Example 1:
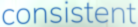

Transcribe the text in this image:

consistent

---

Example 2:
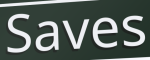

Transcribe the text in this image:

Saves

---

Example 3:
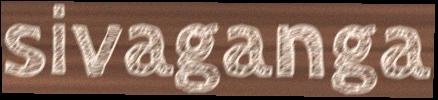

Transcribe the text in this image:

sivaganga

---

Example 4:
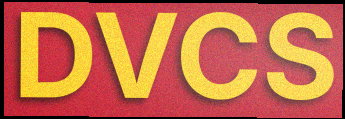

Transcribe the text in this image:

DVCS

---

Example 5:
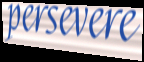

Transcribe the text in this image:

persevere